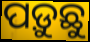
ପଡ଼ୁଛୁ